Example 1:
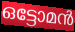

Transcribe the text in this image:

ഒട്ടോമൻ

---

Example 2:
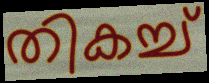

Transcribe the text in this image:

തികച്ച്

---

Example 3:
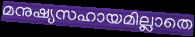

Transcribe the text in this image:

മനുഷ്യസഹായമില്ലാതെ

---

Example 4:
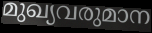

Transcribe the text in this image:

മുഖ്യവരുമാന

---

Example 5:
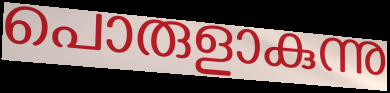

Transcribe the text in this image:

പൊരുളാകുന്നു